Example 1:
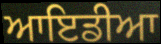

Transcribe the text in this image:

ਆਇਡੀਆ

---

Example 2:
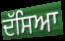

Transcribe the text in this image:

ਦੱਸਿਆ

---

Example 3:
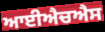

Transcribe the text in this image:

ਆਈਐਚਐਸ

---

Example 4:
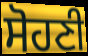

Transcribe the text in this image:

ਸੋਹਣੀ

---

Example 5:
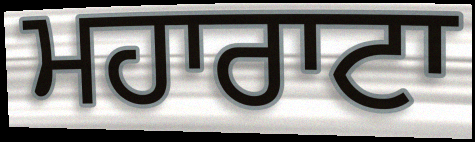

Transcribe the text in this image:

ਮਹਾਰਾਟਾ